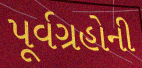
પૂર્વગ્રહોની